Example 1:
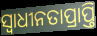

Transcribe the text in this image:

ସ୍ୱାଧୀନତାପ୍ରାପ୍ତି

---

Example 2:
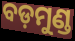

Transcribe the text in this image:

ବଡ଼ମୁଣ୍ଡ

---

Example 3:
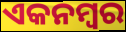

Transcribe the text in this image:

ଏକନମ୍ବର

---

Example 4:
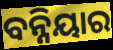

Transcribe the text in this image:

ବନ୍ନିୟାର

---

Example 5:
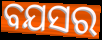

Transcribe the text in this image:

ବଯସର